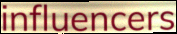
influencers